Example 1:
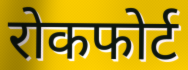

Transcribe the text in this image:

रोकफोर्ट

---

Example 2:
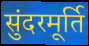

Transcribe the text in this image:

सुंदरमूर्ति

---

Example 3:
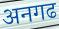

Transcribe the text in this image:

अनगढ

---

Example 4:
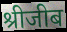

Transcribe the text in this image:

श्रीजीब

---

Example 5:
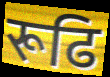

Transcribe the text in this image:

रूढि